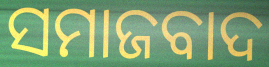
ସମାଜବାଦ